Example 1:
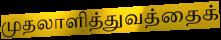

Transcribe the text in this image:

முதலாளித்துவத்தைக்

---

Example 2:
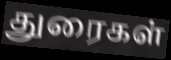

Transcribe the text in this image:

துரைகள்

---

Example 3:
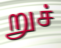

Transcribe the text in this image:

றுச்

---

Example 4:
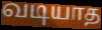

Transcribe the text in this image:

வடியாத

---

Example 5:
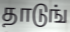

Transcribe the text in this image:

தாடுங்